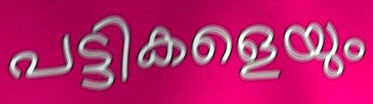
പട്ടികളെയും